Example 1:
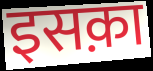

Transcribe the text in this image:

इसक़ा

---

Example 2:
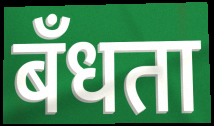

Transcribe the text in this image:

बँधता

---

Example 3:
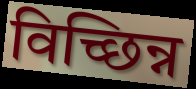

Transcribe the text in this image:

विच्छिन्न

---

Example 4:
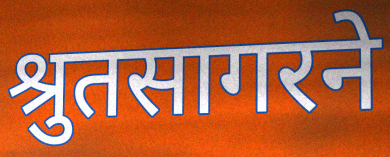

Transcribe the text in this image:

श्रुतसागरने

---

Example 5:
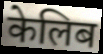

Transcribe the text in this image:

केलिब